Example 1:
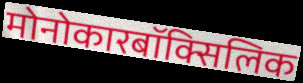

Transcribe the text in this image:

मोनोकारबॉक्सिलिक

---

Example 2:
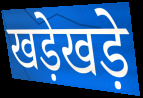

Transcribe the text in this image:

खड़ेखड़े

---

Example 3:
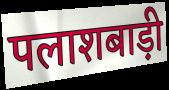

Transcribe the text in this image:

पलाशबाड़ी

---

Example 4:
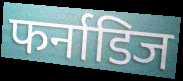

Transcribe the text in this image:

फर्नाडिज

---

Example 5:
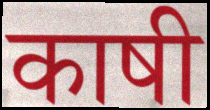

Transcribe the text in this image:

काषी